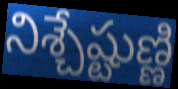
నిశ్చేష్టుణ్ణి